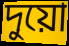
দুয়ো